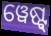
ୱେଷ୍ଟ୍